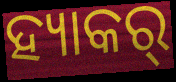
ହ୍ୟାକର୍